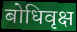
बोधिवृक्ष